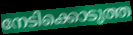
നേടിക്കൊടുത്ത